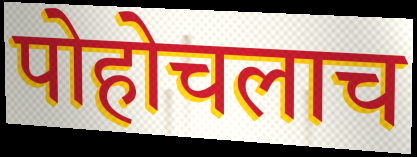
पोहोचलाच